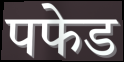
पफेड